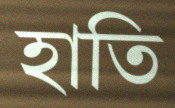
হাতি